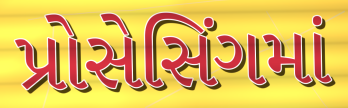
પ્રોસેસિંગમાં